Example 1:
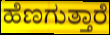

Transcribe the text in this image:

ಹೆಣಗುತ್ತಾರೆ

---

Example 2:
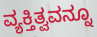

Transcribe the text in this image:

ವ್ಯಕ್ತಿತ್ವವನ್ನೂ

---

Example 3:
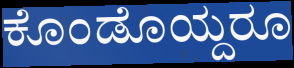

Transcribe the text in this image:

ಕೊಂಡೊಯ್ದರೂ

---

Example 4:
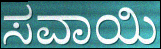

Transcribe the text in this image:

ಸವಾಯಿ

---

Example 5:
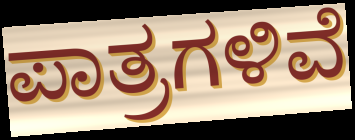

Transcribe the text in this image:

ಪಾತ್ರಗಳಿವೆ